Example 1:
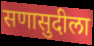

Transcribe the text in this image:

सणासुदीला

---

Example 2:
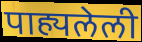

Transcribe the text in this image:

पाह्यलेली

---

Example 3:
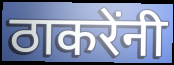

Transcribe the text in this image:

ठाकरेंनी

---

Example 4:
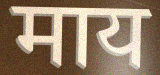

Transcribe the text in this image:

माय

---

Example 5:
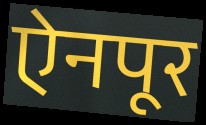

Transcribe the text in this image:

ऐनपूर